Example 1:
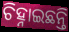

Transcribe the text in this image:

ଚିହ୍ନାଇଛନ୍ତି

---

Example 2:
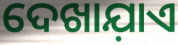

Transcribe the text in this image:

ଦେଖାଯ଼ାଏ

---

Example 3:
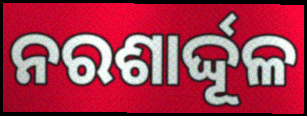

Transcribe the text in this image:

ନରଶାର୍ଦ୍ଦୂଳ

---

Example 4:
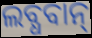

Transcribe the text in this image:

ଲବ୍ଧବାନ୍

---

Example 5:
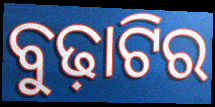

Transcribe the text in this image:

ବୁଢ଼ାଟିର